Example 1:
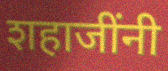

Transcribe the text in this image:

शहाजींनी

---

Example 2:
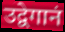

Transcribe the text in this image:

उद्वेगानं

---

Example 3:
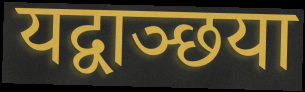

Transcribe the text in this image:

यद्वाञ्छया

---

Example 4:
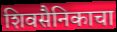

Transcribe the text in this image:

शिवसैनिकाचा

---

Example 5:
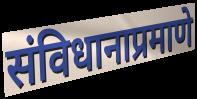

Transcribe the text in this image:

संविधानाप्रमाणे